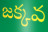
జక్కవ